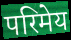
परिमेय